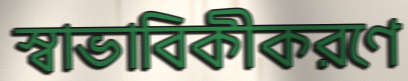
স্বাভাবিকীকরণে